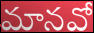
మానవో